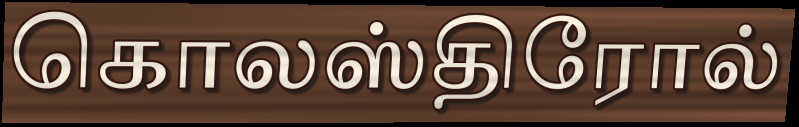
கொலஸ்திரோல்